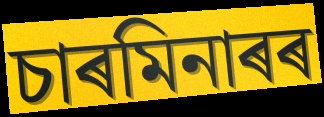
চাৰমিনাৰৰ